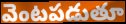
వెంటపడుతూ